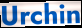
Urchin